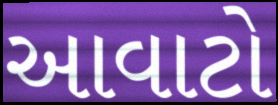
આવાટો